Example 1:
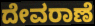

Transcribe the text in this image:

ದೇವರಾಣೆ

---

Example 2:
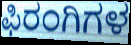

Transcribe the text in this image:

ಫಿರಂಗಿಗಳ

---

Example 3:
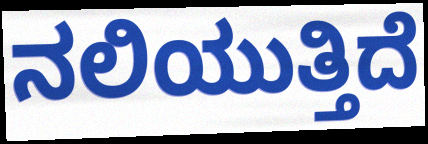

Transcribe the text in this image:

ನಲಿಯುತ್ತಿದೆ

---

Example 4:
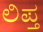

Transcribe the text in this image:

ಲಿಪ್ತ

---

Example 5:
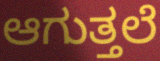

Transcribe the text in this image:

ಆಗುತ್ತಲೆ